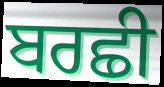
ਬਰਛੀ